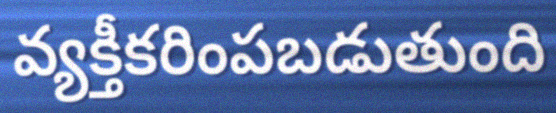
వ్యక్తీకరింపబడుతుంది